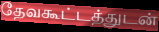
தேவகூட்டத்துடன்